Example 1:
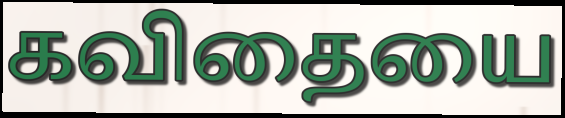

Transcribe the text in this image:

கவிதையை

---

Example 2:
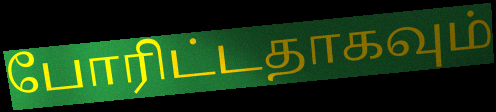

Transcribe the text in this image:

போரிட்டதாகவும்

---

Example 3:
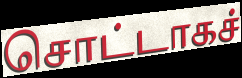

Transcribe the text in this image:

சொட்டாகச்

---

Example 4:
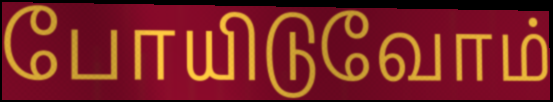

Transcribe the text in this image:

போயிடுவோம்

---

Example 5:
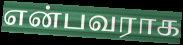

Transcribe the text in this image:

என்பவராக